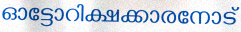
ഓട്ടോറിക്ഷക്കാരനോട്